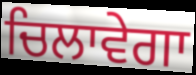
ਚਿਲਾਵੇਗਾ